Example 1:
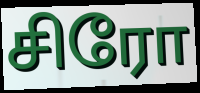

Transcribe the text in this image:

சிரோ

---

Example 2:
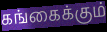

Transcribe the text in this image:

கங்கைக்கும்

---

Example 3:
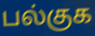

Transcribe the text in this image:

பல்குக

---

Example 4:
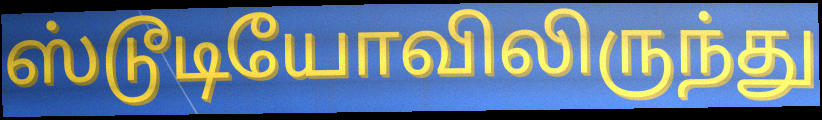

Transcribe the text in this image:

ஸ்டூடியோவிலிருந்து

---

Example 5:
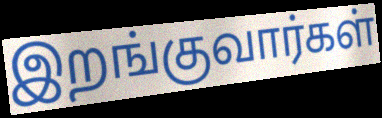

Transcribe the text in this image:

இறங்குவார்கள்